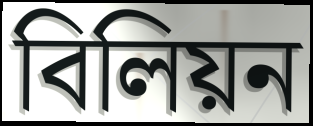
বিলিয়ন